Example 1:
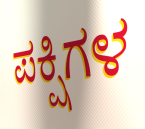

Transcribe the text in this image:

ಪಕ್ಷಿಗಳ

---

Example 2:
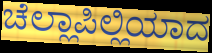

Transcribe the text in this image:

ಚೆಲ್ಲಾಪಿಲ್ಲಿಯಾದ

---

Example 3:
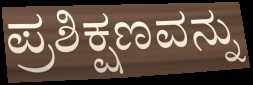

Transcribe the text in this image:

ಪ್ರಶಿಕ್ಷಣವನ್ನು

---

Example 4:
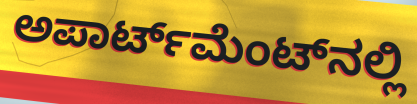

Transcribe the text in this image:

ಅಪಾರ್ಟ್‌ಮೆಂಟ್‌ನಲ್ಲಿ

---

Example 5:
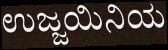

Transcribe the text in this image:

ಉಜ್ಜಯಿನಿಯ